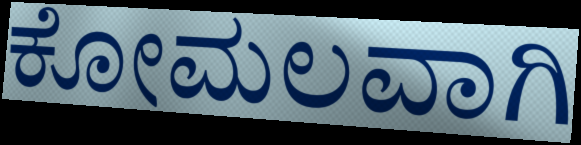
ಕೋಮಲವಾಗಿ